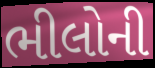
ભીલોની